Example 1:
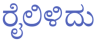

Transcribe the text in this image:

ರೈಲಿಳಿದು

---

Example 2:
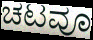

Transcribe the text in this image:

ಚಟವೂ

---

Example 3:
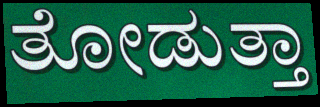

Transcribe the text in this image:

ತೋಡುತ್ತಾ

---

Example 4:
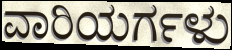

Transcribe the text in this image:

ವಾರಿಯರ್ಗಳು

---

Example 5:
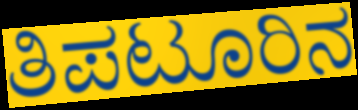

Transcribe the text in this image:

ತಿಪಟೂರಿನ